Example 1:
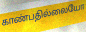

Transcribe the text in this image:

காண்பதில்லையோ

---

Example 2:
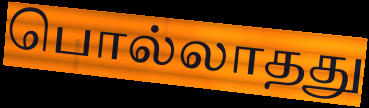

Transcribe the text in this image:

பொல்லாதது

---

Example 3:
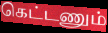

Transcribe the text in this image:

கெட்டணும்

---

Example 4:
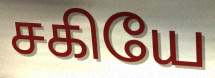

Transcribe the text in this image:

சகியே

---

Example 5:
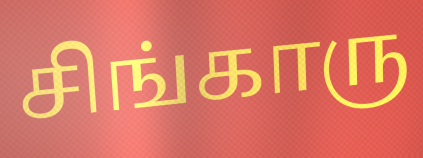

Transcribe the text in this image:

சிங்காரு